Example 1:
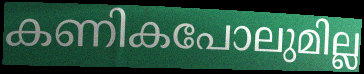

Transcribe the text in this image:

കണികപോലുമില്ല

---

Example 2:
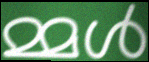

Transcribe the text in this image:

മ്മൾ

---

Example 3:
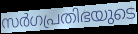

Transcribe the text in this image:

സർഗപ്രതിഭയുടെ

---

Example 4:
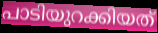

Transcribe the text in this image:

പാടിയുറക്കിയത്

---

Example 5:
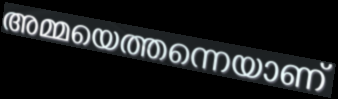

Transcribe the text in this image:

അമ്മയെത്തന്നെയാണ്